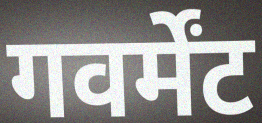
गवर्मेंट